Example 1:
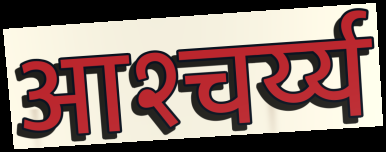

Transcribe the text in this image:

आश्चर्य्य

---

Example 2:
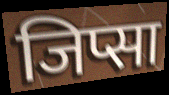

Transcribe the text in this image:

जिप्सा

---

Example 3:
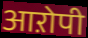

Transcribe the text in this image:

आऱोपी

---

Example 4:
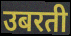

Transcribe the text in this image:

उबरती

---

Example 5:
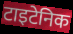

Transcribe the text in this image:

टाइटेनिक